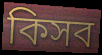
কিসব